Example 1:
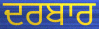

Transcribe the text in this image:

ਦਰਬਾਰ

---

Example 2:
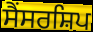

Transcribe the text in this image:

ਸੈਂਸਰਸ਼ਿਪ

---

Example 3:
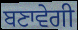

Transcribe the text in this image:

ਬਣਾਵੇਗੀ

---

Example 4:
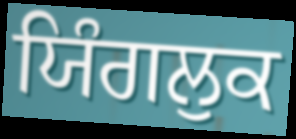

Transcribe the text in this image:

ਯਿੰਗਲੁਕ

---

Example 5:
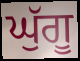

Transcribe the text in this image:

ਘੁੱਗੂ